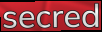
secred